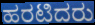
ಹರಟಿದರು